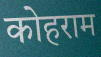
कोहराम